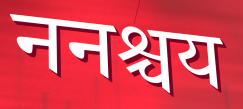
ननश्चय